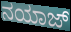
ನಯಾಜ್